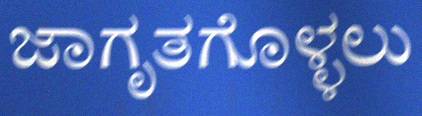
ಜಾಗೃತಗೊಳ್ಳಲು